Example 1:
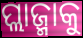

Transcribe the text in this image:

ପ୍ଲାଜ୍ମାକୁ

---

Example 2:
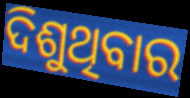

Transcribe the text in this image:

ଦିଶୁଥିବାର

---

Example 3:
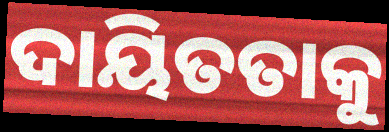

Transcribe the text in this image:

ଦାୟିତତାକୁ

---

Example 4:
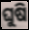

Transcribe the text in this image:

ଘୁଷି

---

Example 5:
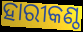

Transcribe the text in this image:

ହାରୀକଣ୍ଠ